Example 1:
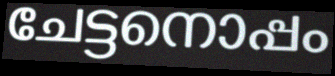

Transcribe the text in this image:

ചേട്ടനൊപ്പം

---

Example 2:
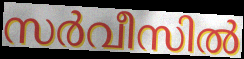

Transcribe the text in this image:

സർവീസിൽ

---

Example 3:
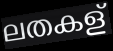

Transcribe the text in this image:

ലതകള്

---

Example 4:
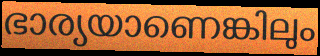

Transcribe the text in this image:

ഭാര്യയാണെങ്കിലും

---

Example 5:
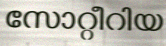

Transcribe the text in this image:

സോറ്റീറിയ